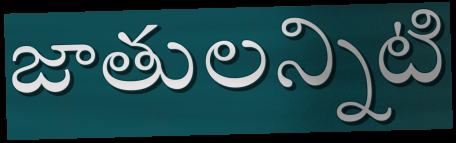
జాతులన్నిటి